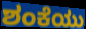
ಶಂಕೆಯು